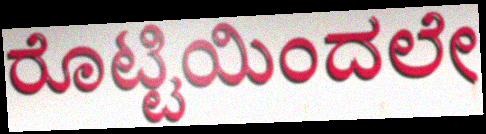
ರೊಟ್ಟಿಯಿಂದಲೇ